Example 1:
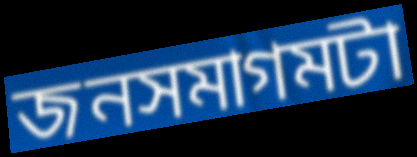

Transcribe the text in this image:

জনসমাগমটা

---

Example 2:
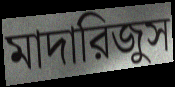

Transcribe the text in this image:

মাদারিজুস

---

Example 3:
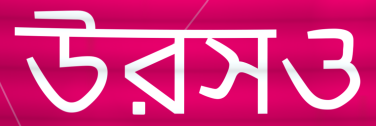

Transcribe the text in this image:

উরসও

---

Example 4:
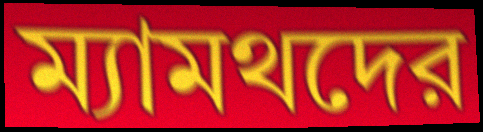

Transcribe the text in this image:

ম্যামথদের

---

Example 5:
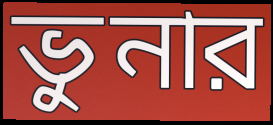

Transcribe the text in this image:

ভুনার